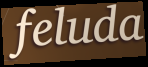
feluda